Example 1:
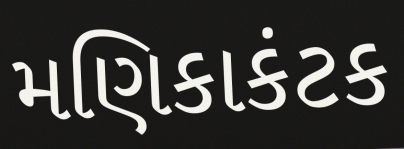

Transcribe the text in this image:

મણિકાકંટક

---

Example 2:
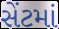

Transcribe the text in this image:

સેંટમાં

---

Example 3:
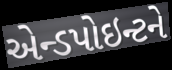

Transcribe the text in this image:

એન્ડપોઇન્ટને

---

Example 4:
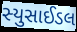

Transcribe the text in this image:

સ્યુસાઈડલ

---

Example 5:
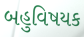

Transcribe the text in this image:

બહુવિષયક